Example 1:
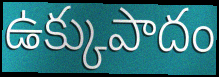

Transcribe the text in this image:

ఉక్కుపాదం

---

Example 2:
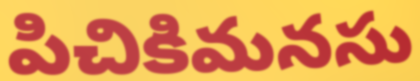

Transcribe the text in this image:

పిచికిమనసు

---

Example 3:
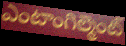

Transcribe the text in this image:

ఎంటాంగిల్మెంట్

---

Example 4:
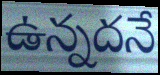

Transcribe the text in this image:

ఉన్నదనే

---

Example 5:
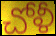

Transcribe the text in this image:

చోళీ